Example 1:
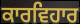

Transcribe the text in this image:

ਕਾਰਵਿਹਾਰ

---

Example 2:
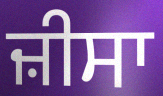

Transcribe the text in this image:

ਜ਼ੀਸਾ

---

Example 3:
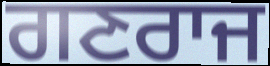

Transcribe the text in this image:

ਗਣਰਾਜ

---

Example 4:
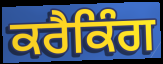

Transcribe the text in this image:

ਕਰੈਕਿੰਗ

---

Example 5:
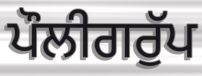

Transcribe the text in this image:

ਪੌਲੀਗਰੁੱਪ